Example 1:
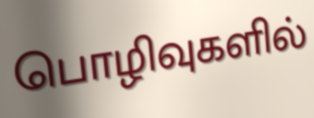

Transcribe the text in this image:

பொழிவுகளில்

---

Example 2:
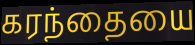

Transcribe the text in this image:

கரந்தையை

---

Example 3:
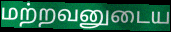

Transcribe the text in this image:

மற்றவனுடைய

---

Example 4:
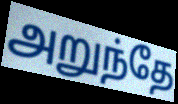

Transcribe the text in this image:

அறுந்தே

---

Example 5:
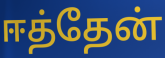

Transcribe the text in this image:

ஈத்தேன்